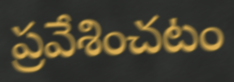
ప్రవేశించటం